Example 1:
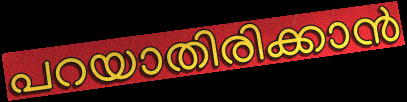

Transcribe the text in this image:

പറയാതിരിക്കാൻ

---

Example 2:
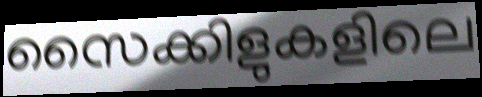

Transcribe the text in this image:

സൈക്കിളുകളിലെ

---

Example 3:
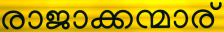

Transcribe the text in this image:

രാജാക്കന്മാര്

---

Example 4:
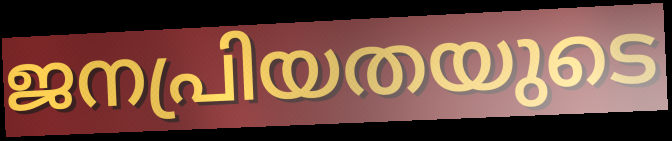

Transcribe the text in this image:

ജനപ്രിയതയുടെ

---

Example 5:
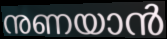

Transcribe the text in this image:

നുണയാൻ